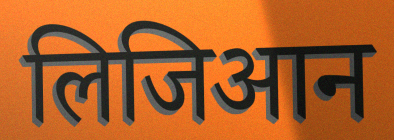
लिजिआन